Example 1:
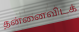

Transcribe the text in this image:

தன்னைவிடக்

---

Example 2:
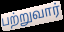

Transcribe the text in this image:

பற்றுவார்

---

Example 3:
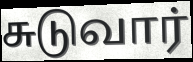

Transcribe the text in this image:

சுடுவார்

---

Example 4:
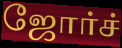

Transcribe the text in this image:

ஜோர்ச்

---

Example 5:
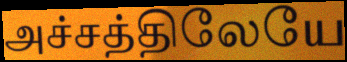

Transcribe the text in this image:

அச்சத்திலேயே